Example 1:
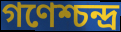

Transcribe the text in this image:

গণেশ্চন্দ্র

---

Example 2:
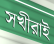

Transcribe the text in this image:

সখীরাই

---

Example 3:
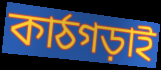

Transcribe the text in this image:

কাঠগড়াই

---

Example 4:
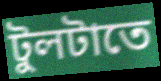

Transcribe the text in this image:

টুলটাতে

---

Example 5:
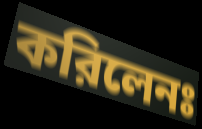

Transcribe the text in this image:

করিলেনঃ